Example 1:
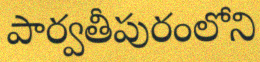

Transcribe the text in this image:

పార్వతీపురంలోని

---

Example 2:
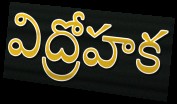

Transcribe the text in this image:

విద్రోహక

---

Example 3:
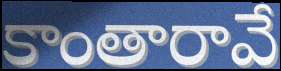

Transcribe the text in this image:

కాంతారావే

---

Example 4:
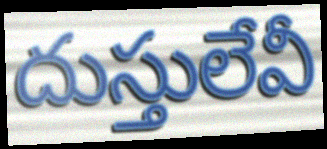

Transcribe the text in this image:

దుస్తులేవీ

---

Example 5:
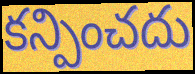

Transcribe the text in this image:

కన్పించదు